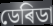
ডেৰিডা